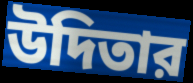
উদিতার